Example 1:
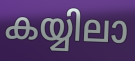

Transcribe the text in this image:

കയ്യിലാ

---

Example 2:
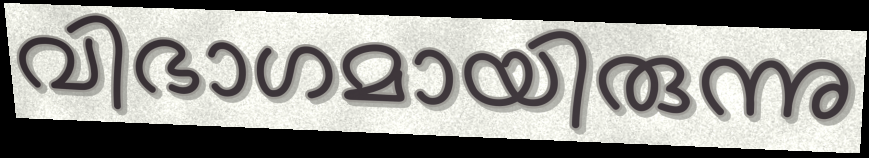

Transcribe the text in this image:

വിഭാഗമായിരുന്നു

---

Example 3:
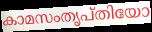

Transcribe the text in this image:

കാമസംതൃപ്തിയോ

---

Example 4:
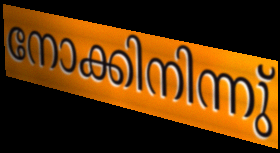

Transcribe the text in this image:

നോക്കിനിന്നു്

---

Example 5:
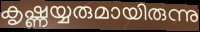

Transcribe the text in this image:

കൃഷ്ണയ്യരുമായിരുന്നു